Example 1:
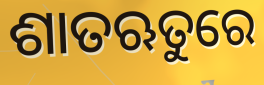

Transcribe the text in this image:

ଶାତଋତୁରେ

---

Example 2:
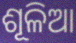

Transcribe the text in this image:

ଶୂଳିଆ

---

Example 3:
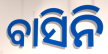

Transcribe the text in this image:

ବାସିନି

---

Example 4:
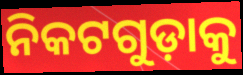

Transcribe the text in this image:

ନିକଟଗୁଡ଼ାକୁ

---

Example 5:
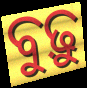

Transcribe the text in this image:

ବୁଢ଼ୁ